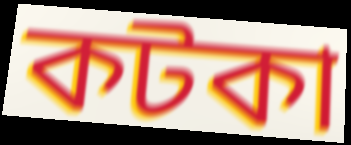
কটকা